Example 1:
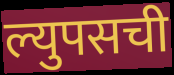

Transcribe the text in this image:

ल्युपसची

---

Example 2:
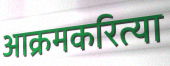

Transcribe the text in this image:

आक्रमकरित्या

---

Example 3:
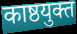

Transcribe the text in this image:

काष्ठयुक्त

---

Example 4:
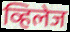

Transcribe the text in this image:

व्हिलेज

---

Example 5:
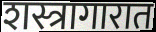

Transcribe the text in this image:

शस्त्रागारात